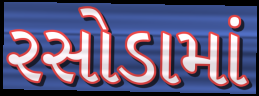
રસોડામાં